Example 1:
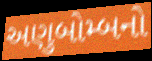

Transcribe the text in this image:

અણુબોમ્બનો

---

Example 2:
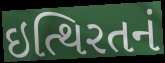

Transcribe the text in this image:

ઇત્થિરતનં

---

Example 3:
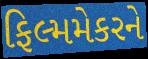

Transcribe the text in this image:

ફિલ્મમેકરને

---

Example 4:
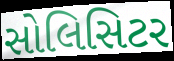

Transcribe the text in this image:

સોલિસિટર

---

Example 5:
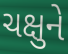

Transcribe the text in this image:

ચક્ષુને